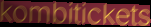
kombitickets